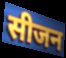
सीजन